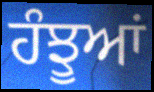
ਹੰਝੂਆਂ